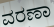
ವರಣಾ